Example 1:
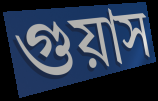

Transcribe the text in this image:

গুয়াস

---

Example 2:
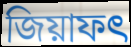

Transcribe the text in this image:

জিয়াফৎ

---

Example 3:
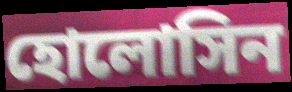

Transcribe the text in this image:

হোলোসিন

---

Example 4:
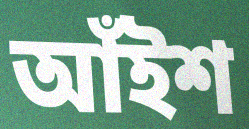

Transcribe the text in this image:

আঁইশ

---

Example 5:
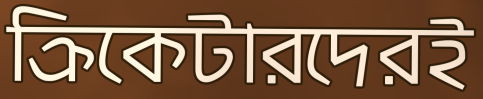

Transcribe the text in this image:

ক্রিকেটারদেরই